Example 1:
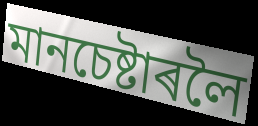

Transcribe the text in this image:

মানচেষ্টাৰলৈ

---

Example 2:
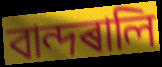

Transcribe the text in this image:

বান্দৰালি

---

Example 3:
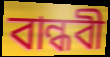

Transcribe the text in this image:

বান্ধবী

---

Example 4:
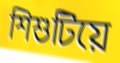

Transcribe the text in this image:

শিশুটিয়ে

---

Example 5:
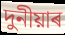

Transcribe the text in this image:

দুনীয়াৰ